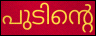
പുടിന്റെ